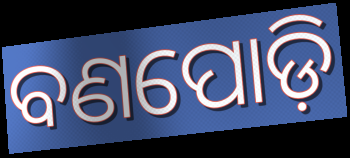
ବଣପୋଡ଼ି